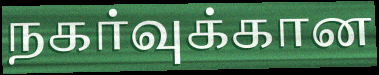
நகர்வுக்கான